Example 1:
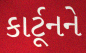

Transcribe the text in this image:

કાર્ટૂનને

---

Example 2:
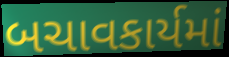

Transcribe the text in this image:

બચાવકાર્યમાં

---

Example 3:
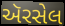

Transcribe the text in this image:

ઍરસેલ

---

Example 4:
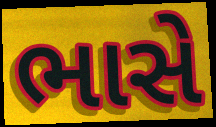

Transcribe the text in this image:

ભાસે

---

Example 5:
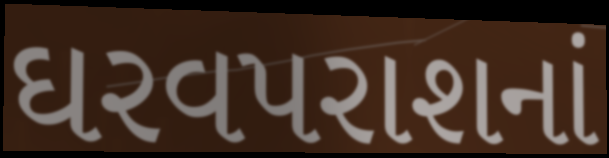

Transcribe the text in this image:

ઘરવપરાશનાં